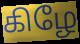
கிழே